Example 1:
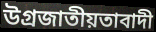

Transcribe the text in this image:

উগ্ৰজাতীয়তাবাদী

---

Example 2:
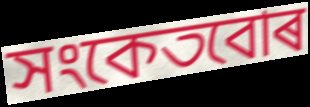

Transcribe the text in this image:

সংকেতবোৰ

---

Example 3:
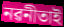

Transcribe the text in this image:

নৱনীতাই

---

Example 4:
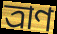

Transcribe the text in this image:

ত্ৰাণ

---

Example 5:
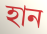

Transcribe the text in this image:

হান